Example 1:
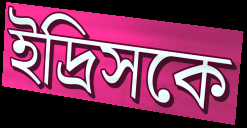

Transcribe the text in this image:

ইদ্রিসকে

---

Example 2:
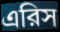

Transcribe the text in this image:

এরিস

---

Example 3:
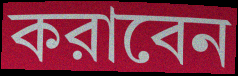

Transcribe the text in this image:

করাবেন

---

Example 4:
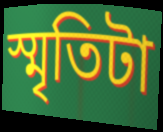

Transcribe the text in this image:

স্মৃতিটা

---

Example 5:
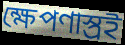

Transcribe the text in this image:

ক্ষেপণাস্ত্রই